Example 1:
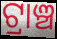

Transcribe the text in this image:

ଟ୍ରାଞ୍ଚ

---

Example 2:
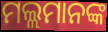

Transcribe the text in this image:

ମଲ୍ଲମାନଙ୍କ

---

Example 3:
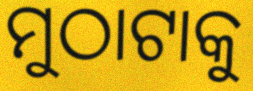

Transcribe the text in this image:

ମୁଠାଟାକୁ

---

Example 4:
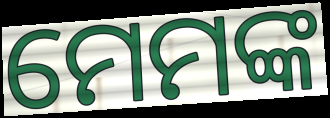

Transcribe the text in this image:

ମେମଙ୍କ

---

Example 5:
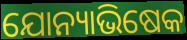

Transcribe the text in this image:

ଯୋନ୍ୟାଭିଷେକ